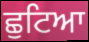
ਛੁਟਿਆ